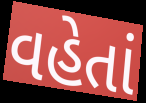
વહેતાં